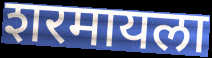
शरमायला